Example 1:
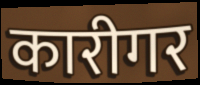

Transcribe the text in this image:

कारीगर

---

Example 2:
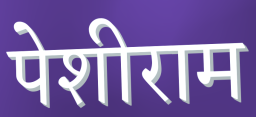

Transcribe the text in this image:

पेशीराम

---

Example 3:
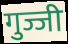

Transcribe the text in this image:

गुज्जी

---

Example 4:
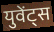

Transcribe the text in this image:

युवेंट्स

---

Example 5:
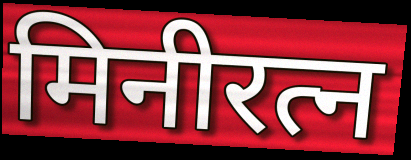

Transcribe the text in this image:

मिनीरत्न